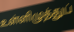
உள்ளிழுத்துப்